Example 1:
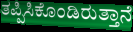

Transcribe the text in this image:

ತಪ್ಪಿಸಿಕೊಂಡಿರುತ್ತಾನೆ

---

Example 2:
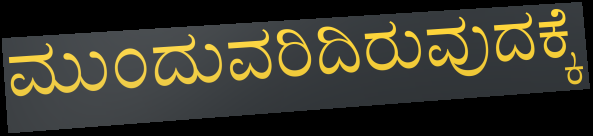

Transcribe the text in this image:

ಮುಂದುವರಿದಿರುವುದಕ್ಕೆ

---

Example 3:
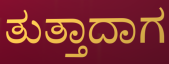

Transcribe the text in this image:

ತುತ್ತಾದಾಗ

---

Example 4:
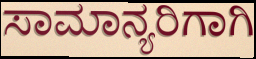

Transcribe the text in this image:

ಸಾಮಾನ್ಯರಿಗಾಗಿ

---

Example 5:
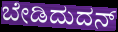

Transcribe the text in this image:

ಬೇಡಿದುದನ್